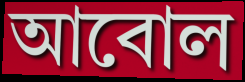
আবোল